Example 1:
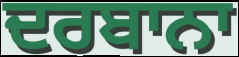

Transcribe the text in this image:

ਦਰਬਾਨਾ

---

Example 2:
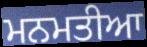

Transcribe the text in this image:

ਮਨਮਤੀਆ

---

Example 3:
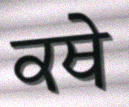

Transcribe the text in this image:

ਕਥੇ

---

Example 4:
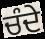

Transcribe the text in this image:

ਚੰਦੇ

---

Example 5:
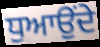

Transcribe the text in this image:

ਧੁਆਉਂਦੇ